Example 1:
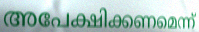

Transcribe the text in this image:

അപേക്ഷിക്കണമെന്ന്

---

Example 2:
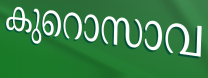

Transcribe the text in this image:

കുറൊസാവ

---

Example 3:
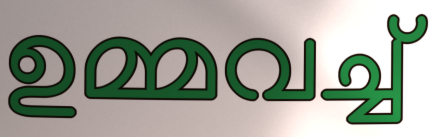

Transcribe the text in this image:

ഉമ്മവച്ച്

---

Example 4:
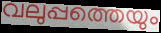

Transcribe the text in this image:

വലുപ്പത്തെയും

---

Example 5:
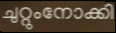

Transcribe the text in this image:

ചുറ്റുംനോക്കി